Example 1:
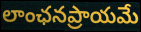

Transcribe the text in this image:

లాంఛనప్రాయమే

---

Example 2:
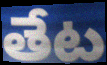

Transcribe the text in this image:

తేట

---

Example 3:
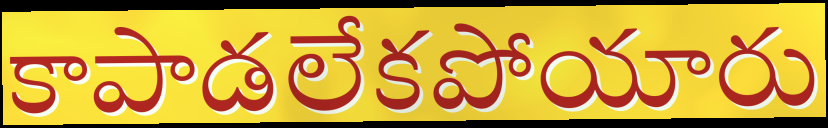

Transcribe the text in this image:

కాపాడలేకపోయారు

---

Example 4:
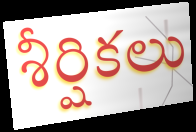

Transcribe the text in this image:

శీర్షికలు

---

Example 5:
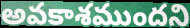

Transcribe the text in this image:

అవకాశముందని